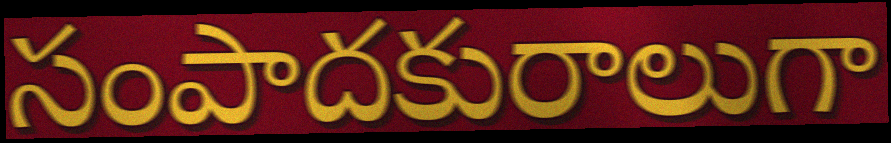
సంపాదకురాలుగా